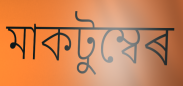
মাকটুম্বেৰ